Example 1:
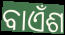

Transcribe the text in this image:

ବାଏଁଶ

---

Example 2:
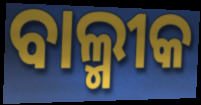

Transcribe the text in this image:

ବାଲ୍ମୀକ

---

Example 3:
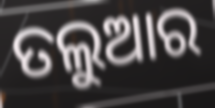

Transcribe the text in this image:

ତଲୁଆର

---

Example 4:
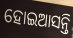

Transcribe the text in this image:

ହୋଇଆସନ୍ତି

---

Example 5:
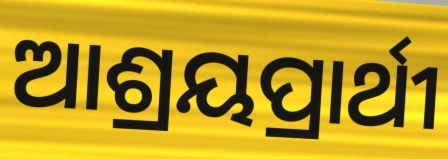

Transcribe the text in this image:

ଆଶ୍ରୟପ୍ରାର୍ଥୀ